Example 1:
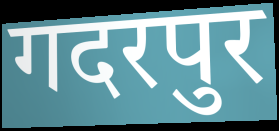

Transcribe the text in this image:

गदरपुर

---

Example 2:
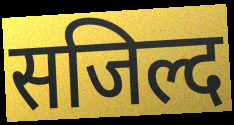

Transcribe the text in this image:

सजिल्द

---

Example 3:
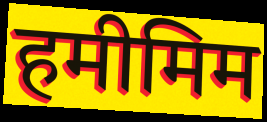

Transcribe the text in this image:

हमीमिम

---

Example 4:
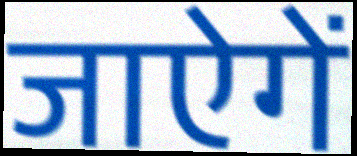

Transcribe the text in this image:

जाऐगें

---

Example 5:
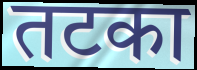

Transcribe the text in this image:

तटका